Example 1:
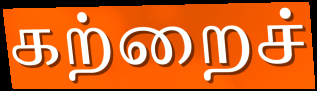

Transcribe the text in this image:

கற்றைச்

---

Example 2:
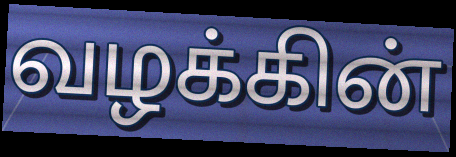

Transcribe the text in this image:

வழக்கின்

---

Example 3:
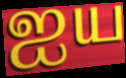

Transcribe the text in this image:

ஐய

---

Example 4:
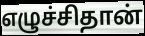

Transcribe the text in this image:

எழுச்சிதான்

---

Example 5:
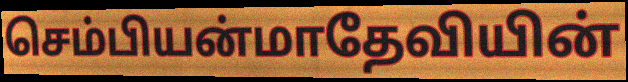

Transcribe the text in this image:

செம்பியன்மாதேவியின்